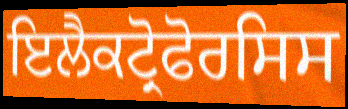
ਇਲੈਕਟ੍ਰੋਫੋਰਸਿਸ